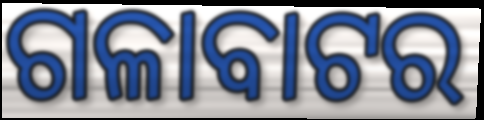
ଗଳାବାଟର